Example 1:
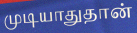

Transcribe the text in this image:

முடியாதுதான்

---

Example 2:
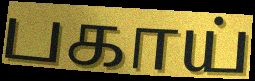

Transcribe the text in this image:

பகாய்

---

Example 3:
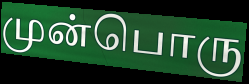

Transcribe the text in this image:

முன்பொரு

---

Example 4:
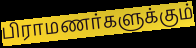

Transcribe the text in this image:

பிராமணர்களுக்கும்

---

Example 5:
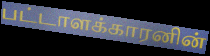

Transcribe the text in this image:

பட்டாளக்காரனின்